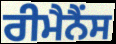
ਰੀਮੈਨੈਂਸ